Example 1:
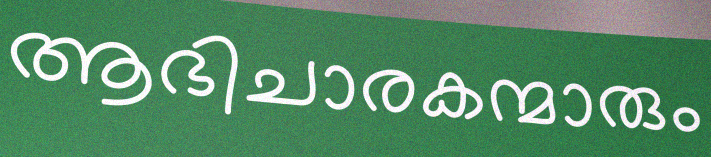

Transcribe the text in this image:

ആഭിചാരകന്മാരും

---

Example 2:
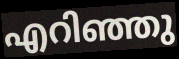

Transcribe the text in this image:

എറിഞ്ഞു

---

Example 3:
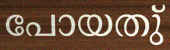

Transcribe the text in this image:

പോയതു്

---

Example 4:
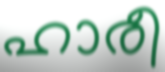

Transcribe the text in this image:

ഹാരീ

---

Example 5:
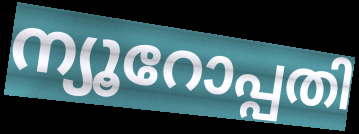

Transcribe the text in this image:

ന്യൂറോപ്പതി